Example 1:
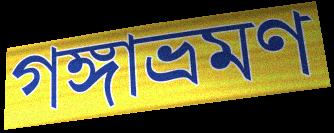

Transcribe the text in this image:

গঙ্গাভ্রমণ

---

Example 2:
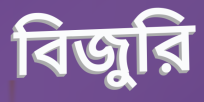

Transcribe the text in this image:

বিজুরি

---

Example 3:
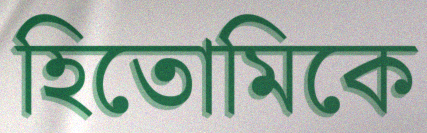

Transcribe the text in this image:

হিতোমিকে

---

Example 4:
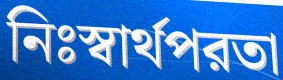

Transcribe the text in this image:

নিঃস্বার্থপরতা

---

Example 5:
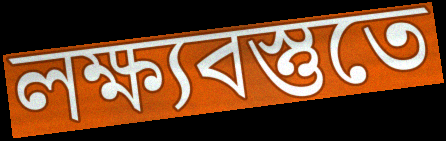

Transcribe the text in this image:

লক্ষ্যবস্তুতে